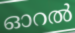
ഓറൽ